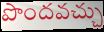
పొందవచ్చు